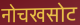
नोचखसोट